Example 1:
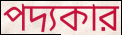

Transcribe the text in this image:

পদ্যকার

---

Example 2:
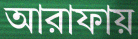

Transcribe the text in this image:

আরাফায়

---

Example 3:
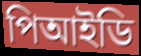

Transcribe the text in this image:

পিআইডি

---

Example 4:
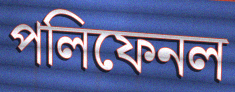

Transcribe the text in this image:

পলিফেনল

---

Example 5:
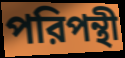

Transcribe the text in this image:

পরিপন্থী